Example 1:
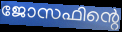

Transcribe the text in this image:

ജോസഫിന്റെ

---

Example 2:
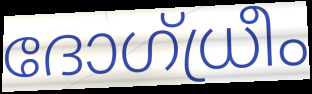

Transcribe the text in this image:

ദോഗ്ധ്രീം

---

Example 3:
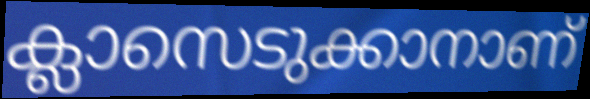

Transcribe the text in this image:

ക്ലാസെടുക്കാനാണ്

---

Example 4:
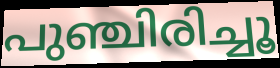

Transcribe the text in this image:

പുഞ്ചിരിച്ചൂ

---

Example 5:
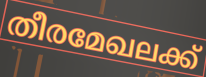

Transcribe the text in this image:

തീരമേഖലക്ക്